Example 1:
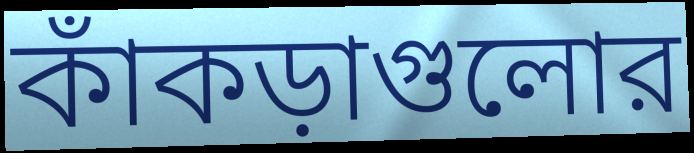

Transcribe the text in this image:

কাঁকড়াগুলোর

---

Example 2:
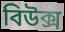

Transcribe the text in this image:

বিউক্স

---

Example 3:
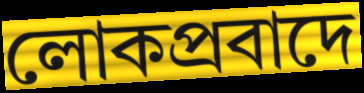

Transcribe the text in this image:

লোকপ্রবাদে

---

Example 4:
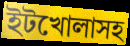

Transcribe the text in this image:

ইটখোলাসহ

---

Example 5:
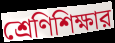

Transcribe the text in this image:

শ্রেণিশিক্ষার